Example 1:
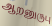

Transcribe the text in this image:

ஆறனுருபு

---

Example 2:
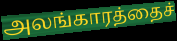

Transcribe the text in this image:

அலங்காரத்தைச்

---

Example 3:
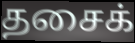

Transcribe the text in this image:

தசைக்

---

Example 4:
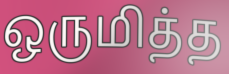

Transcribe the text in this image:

ஒருமித்த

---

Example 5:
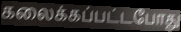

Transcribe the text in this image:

கலைக்கப்பட்டபோது